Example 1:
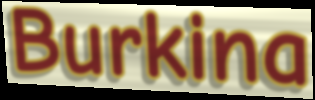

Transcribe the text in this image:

Burkina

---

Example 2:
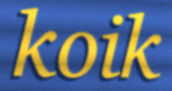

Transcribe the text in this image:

koik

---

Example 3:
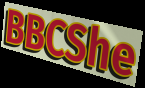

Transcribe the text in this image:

BBCShe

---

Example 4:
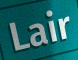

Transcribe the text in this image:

Lair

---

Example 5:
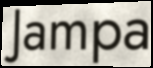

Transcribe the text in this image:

Jampa